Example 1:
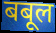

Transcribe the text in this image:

बबूल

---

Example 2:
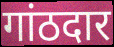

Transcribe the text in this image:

गांठदार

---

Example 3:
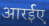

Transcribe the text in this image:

आरईए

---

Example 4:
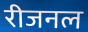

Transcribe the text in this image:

रीजनल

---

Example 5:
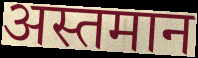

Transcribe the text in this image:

अस्तमान